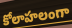
కోలాహలంగా